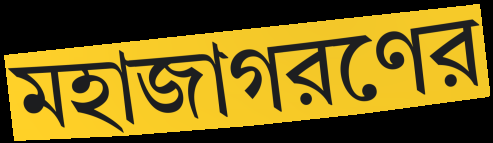
মহাজাগরণের